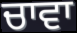
ਚਾਵਾ